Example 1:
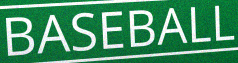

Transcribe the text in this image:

BASEBALL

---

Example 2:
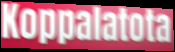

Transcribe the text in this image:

Koppalatota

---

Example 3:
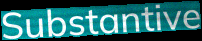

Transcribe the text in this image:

Substantive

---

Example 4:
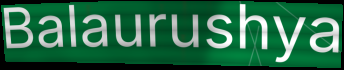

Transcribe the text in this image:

Balaurushya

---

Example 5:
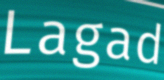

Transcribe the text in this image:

Lagad